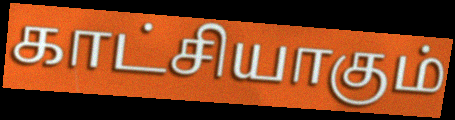
காட்சியாகும்